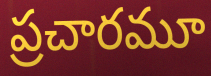
ప్రచారమూ